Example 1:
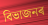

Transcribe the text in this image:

বিভাজনৰ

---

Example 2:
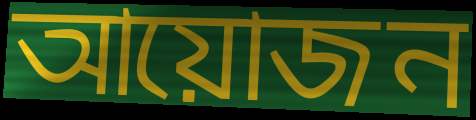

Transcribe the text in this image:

আয়োজন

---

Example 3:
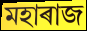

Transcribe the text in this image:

মহাৰাজ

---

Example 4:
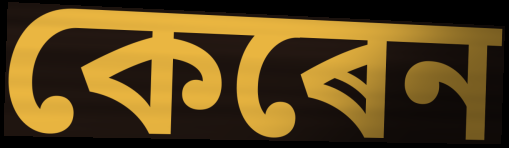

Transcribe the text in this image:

কেৰেন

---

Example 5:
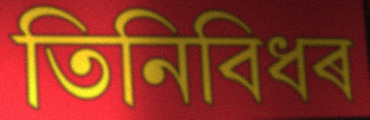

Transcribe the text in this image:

তিনিবিধৰ